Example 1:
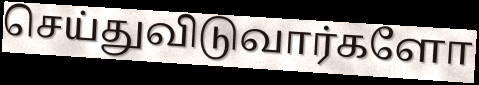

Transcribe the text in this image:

செய்துவிடுவார்களோ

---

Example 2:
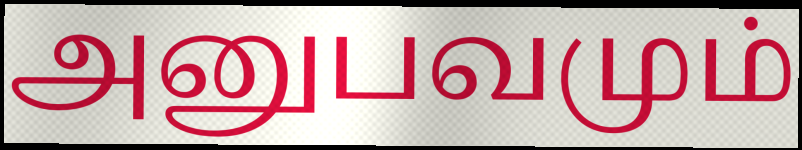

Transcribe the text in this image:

அனுபவமும்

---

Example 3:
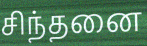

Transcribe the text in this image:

சிந்தனை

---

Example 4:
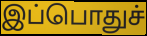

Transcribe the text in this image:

இப்பொதுச்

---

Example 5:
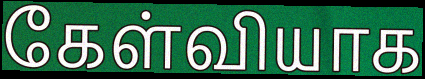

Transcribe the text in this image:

கேள்வியாக